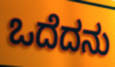
ಒದೆದನು